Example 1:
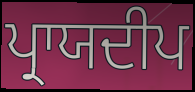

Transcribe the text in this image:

ਪ੍ਰਾਯਦੀਪ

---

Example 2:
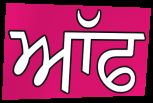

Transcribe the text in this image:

ਆੱਫ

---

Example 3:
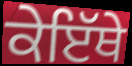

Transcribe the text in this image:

ਕੇਇੱਥੇ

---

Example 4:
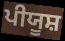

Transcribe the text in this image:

ਪੀਯੂਸ਼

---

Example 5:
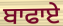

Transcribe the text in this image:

ਬਾਫਾਏ